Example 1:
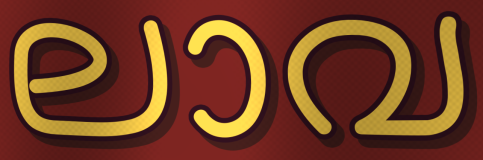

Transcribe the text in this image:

ലാവ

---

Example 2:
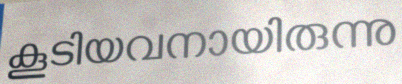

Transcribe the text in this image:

കൂടിയവനായിരുന്നു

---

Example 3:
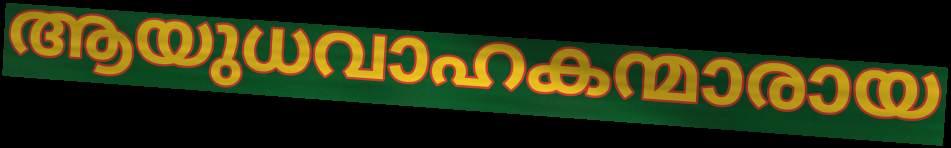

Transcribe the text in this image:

ആയുധവാഹകന്മാരായ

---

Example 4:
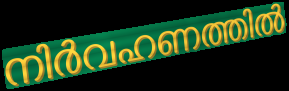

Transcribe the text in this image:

നിർവഹണത്തിൽ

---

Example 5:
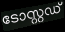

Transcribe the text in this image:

ടോസ്റ്റഡ്